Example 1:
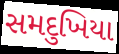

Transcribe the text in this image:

સમદુખિયા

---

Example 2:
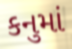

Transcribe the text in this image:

કનુમાં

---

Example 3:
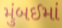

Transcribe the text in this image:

મુંબઈમાં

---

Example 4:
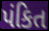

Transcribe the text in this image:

પંકિત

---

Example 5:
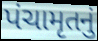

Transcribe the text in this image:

પંચામૃતનું